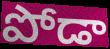
పోడా